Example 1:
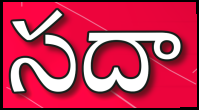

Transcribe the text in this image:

సదా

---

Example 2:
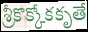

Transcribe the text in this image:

శ్రీకొక్కోకకృతే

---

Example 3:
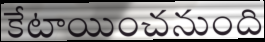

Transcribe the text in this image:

కేటాయించనుంది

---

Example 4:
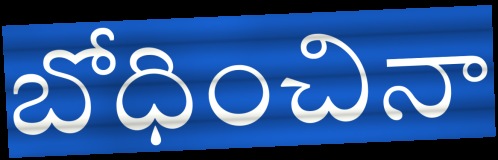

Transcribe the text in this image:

బోధించినా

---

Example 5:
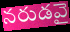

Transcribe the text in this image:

నరుడవై